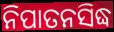
ନିପାତନସିଦ୍ଧ